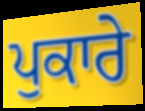
ਪੁਕਾਰੇ